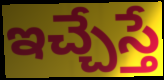
ఇచ్చేస్తే